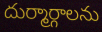
దుర్మార్గాలను